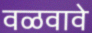
वळवावे